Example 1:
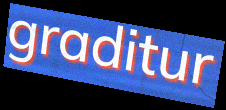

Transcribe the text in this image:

graditur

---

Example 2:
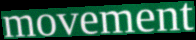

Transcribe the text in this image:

movement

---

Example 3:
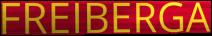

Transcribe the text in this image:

FREIBERGA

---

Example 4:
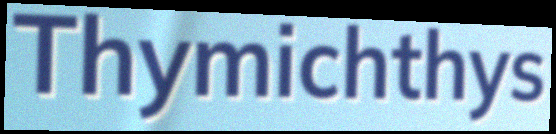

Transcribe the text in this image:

Thymichthys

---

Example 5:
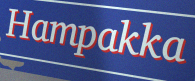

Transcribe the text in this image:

Hampakka